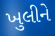
ખુલીને